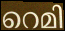
റെമി